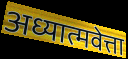
अध्यात्मवेत्ता